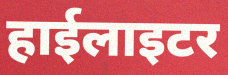
हाईलाइटर